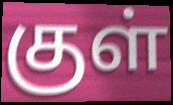
குள்